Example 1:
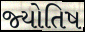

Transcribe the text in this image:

જ્‍યોતિષ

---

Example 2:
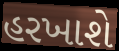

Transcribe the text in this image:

હરખાશે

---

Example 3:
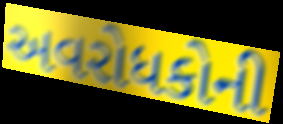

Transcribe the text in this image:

અવરોધકોની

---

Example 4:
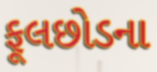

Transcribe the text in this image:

ફૂલછોડના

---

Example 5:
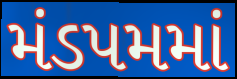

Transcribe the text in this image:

મંડપમમાં